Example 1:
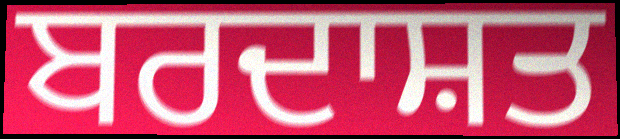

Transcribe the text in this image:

ਬਰਦਾਸ਼ਤ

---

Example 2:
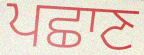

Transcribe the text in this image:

ਪਛਾਣ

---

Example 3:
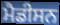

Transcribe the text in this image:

ਮੈਡੀਸਨ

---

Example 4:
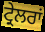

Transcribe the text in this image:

ਟ੍ਰੇਲਰਾਂ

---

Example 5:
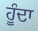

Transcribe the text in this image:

ਹੂੰਦਾ